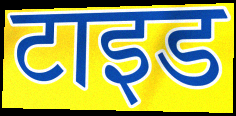
टाइड